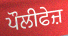
ਪੌਲੀਫੇਜ਼